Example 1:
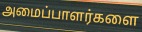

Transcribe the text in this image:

அமைப்பாளர்களை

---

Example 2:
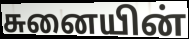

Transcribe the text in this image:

சுனையின்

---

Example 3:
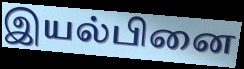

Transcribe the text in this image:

இயல்பினை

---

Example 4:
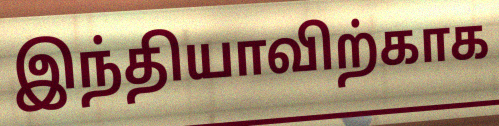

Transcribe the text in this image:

இந்தியாவிற்காக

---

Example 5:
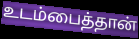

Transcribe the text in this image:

உடம்பைத்தான்